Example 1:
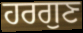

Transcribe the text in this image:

ਹਰਗੁਣ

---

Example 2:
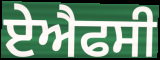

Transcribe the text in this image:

ਏਐਫਸੀ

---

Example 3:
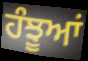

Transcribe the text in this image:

ਹੰਝੂਆਂ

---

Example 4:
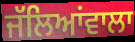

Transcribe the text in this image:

ਜੱਲਿਆਂਵਾਲਾ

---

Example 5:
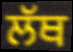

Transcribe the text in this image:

ਲੱਥ